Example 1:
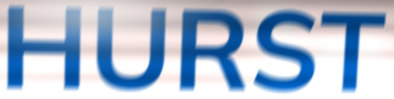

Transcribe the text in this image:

HURST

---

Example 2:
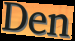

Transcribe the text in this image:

Den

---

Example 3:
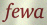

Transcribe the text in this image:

fewa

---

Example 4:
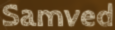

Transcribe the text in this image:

Samved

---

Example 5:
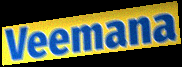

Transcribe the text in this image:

Veemana